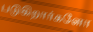
படுகிறார்களோ